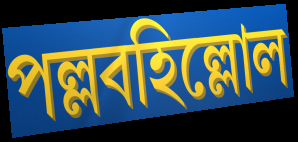
পল্লবহিল্লোল